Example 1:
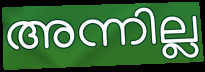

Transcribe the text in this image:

അന്നില്ല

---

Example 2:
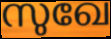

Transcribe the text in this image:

സുഖേ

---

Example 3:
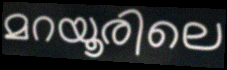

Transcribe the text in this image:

മറയൂരിലെ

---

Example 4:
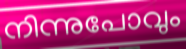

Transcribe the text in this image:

നിന്നുപോവും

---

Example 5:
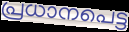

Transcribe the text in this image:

പ്രധാനപെട്ട